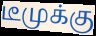
டீமுக்கு